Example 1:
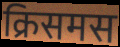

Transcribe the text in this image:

क्रिसमस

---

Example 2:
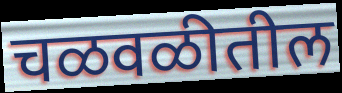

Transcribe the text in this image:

चळवळीतील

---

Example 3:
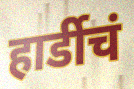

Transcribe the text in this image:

हार्डीचं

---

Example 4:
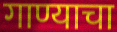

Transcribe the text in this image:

गाण्याचा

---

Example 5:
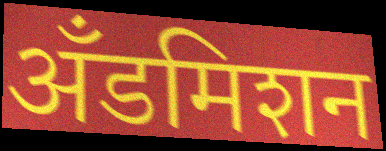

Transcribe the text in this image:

अँडमिशन